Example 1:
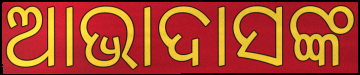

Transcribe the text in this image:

ଆଭାଦାସଙ୍କ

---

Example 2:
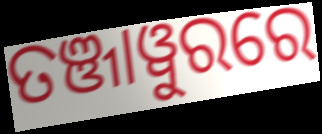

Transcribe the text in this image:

ତଞ୍ଜାୱୁରରେ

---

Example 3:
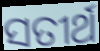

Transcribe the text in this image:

ସତୀର୍ଥ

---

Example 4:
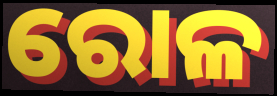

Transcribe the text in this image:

ରୋଳ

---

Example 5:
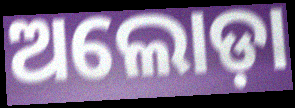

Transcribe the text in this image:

ଅଲୋଡ଼ା